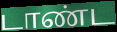
டாண்ட